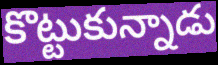
కొట్టుకున్నాడు